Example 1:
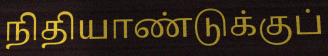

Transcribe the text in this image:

நிதியாண்டுக்குப்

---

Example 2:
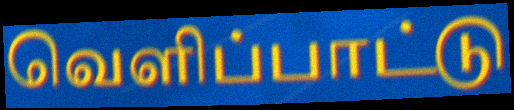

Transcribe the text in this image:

வெளிப்பாட்டு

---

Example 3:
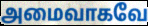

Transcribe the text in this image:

அமைவாகவே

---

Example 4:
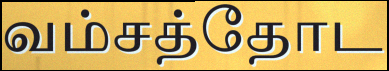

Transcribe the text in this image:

வம்சத்தோட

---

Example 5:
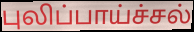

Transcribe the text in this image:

புலிப்பாய்ச்சல்